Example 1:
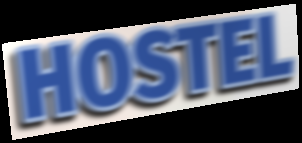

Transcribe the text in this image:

HOSTEL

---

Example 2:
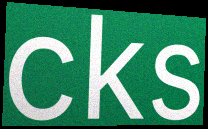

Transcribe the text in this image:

cks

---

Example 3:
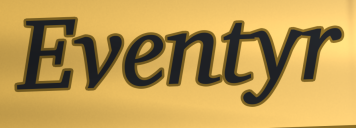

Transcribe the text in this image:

Eventyr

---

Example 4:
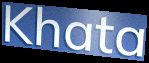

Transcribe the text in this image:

Khata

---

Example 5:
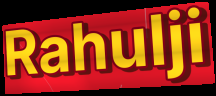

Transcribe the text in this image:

Rahulji